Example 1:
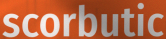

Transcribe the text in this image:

scorbutic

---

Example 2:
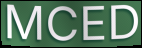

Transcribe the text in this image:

MCED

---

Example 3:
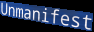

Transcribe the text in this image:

Unmanifest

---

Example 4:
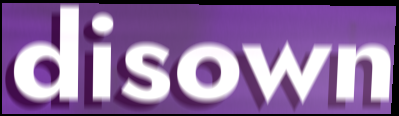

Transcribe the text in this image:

disown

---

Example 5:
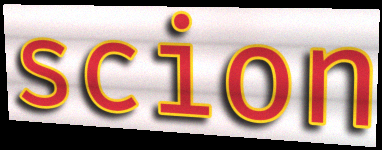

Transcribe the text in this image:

scion